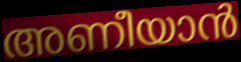
അണീയാൻ